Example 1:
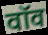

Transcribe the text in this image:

वॉव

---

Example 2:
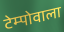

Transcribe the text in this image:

टेम्पोवाला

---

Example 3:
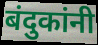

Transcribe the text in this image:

बंदुकांनी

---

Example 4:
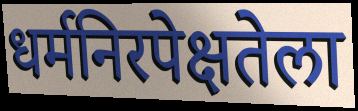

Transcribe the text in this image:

धर्मनिरपेक्षतेला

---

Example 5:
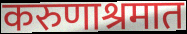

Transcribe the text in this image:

करुणाश्रमात